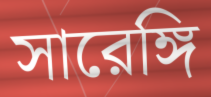
সারেঙ্গি